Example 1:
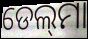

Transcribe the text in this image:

ଡେଲ୍‍ମା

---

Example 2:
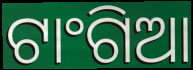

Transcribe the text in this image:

ଟାଂଗିଆ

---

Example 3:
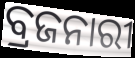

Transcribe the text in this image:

ବ୍ରଜନାରୀ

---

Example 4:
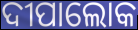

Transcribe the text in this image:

ଦୀପାଲୋକ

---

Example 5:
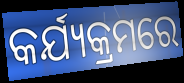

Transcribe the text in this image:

କର୍ଯ୍ୟକ୍ରମରେ